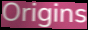
Origins